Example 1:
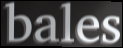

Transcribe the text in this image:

bales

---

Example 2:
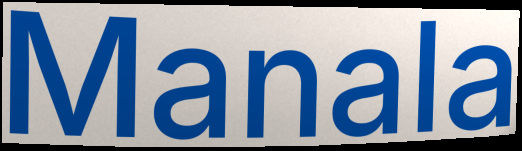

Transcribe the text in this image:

Manala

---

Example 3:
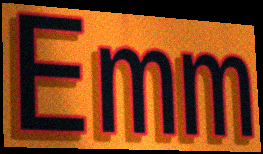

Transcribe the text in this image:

Emm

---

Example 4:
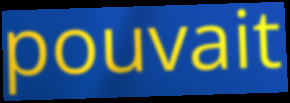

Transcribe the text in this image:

pouvait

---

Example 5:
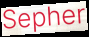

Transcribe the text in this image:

Sepher